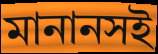
মানানসই